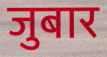
जुबार